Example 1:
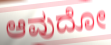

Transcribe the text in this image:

ಆವುದೋ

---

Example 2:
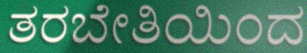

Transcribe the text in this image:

ತರಬೇತಿಯಿಂದ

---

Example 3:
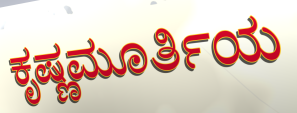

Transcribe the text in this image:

ಕೃಷ್ಣಮೂರ್ತಿಯ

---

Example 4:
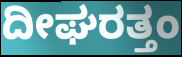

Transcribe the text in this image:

ದೀಘರತ್ತಂ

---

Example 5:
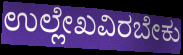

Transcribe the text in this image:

ಉಲ್ಲೇಖವಿರಬೇಕು